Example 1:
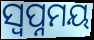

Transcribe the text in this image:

ସ୍ଵପ୍ନମୟ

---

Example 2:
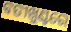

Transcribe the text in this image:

ବତୀଖୁଣ୍ଟରେ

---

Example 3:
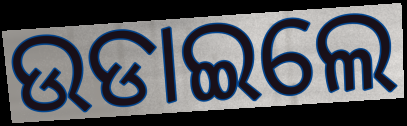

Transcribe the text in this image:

ଉଡାଇଲେ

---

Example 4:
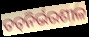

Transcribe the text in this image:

ତତ୍‍ନିର୍ଭରଶୀଳ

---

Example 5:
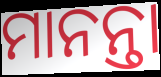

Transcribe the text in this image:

ମାନନ୍ତା